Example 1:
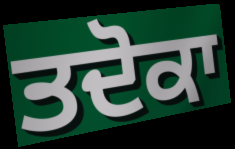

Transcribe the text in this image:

ਤਦੋਕਾ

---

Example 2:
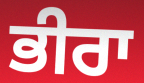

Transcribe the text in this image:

ਭੀਰਾ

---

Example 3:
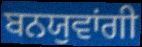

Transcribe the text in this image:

ਬਨਯੁਵਾਂਗੀ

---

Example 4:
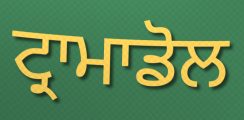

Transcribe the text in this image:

ਟ੍ਰਾਮਾਡੋਲ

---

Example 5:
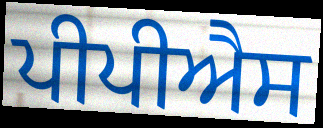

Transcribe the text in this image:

ਪੀਪੀਐਸ